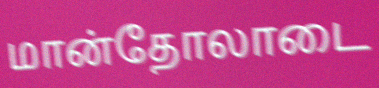
மான்தோலாடை